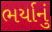
ભર્યાનું